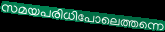
സമയപരിധിപോലെത്തന്നെ